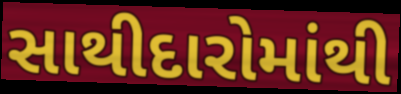
સાથીદારોમાંથી